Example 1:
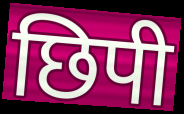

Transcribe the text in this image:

छिपी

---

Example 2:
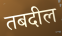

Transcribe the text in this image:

तबदील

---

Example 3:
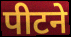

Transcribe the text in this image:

पीटने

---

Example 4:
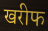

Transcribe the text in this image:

खरीफ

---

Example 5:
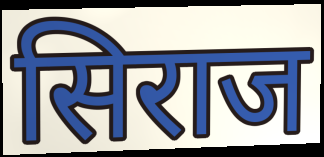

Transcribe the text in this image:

सिराज